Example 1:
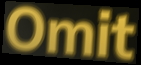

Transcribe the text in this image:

Omit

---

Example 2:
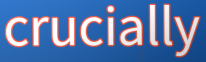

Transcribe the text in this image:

crucially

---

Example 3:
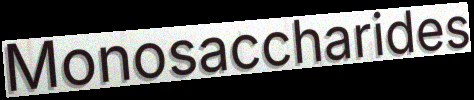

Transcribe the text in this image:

Monosaccharides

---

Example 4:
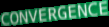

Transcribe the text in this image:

CONVERGENCE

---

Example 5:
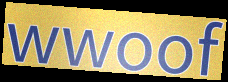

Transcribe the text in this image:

wwoof